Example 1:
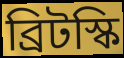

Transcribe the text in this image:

ব্রিটস্কি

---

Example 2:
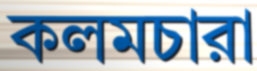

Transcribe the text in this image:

কলমচারা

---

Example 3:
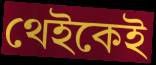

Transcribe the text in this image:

থেইকেই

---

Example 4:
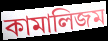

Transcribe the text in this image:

কামালিজম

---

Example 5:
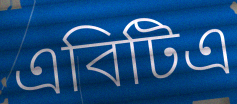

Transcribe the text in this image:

এবিটিএ